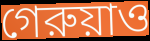
গেরুয়াও